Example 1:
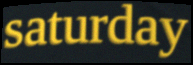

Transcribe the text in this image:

saturday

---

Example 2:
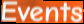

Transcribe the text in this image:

Events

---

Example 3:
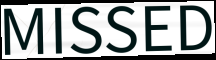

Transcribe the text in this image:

MISSED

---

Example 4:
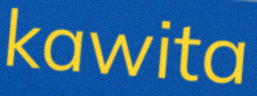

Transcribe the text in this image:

kawita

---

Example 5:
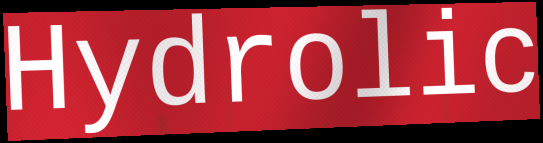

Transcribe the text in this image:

Hydrolic